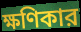
ক্ষণিকার